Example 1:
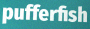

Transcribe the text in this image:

pufferfish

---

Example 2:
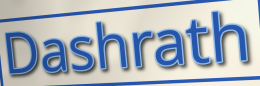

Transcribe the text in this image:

Dashrath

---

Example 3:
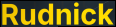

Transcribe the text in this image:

Rudnick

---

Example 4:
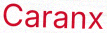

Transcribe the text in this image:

Caranx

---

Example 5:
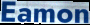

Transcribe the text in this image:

Eamon